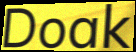
Doak